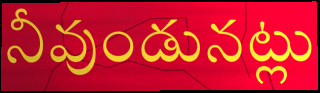
నీవుండునట్లు